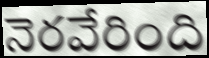
నెరవేరింది